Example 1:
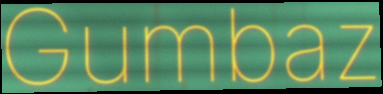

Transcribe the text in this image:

Gumbaz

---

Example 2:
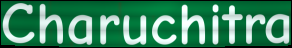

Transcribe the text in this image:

Charuchitra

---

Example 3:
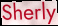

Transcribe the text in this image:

Sherly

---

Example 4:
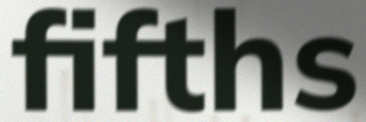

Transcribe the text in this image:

fifths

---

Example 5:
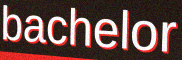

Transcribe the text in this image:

bachelor